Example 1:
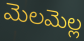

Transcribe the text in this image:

మెలమెల్ల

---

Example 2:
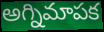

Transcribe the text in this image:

అగ్నిమాపక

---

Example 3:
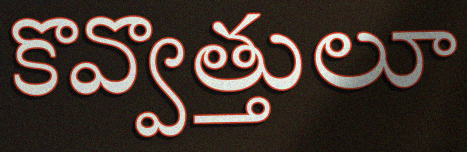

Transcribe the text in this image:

కొవ్వొత్తులూ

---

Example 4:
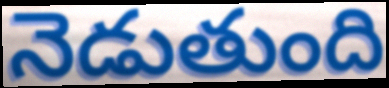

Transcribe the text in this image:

నెడుతుంది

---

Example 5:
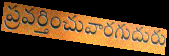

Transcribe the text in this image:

ప్రవర్తించువారగుదురు